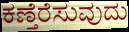
ಕಣ್ತೆರೆಸುವುದು